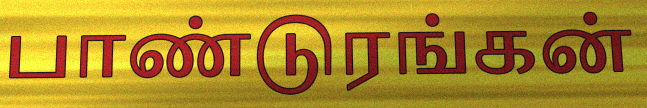
பாண்டுரங்கன்